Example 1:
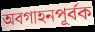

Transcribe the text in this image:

অবগাহনপূর্বক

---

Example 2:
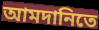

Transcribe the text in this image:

আমদানিতে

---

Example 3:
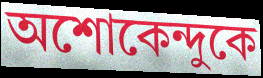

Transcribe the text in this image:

অশোকেন্দুকে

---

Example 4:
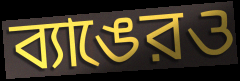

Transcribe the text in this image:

ব্যাঙেরও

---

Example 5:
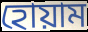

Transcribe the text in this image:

হোয়াম